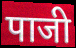
पाजी